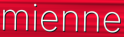
mienne